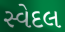
સ્વેદલ